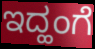
ಇದ್ಹಂಗೆ